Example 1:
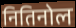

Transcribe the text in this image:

नितिनोल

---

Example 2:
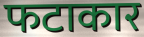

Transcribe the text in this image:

फटाकार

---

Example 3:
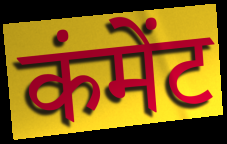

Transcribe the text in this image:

कंमेंट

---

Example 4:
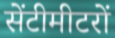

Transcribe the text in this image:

सेंटीमीटरों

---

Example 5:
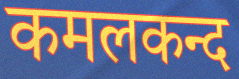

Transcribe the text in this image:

कमलकन्द